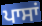
ਪਾਸਾਂ